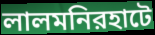
লালমনিরহাটে